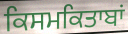
ਕਿਸਮਕਿਤਾਬਾਂ